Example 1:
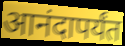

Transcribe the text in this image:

आनंदापर्यंत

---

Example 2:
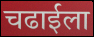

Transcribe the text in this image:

चढाईला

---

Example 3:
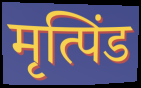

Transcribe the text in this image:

मृत्पिंड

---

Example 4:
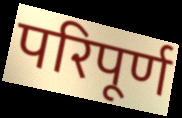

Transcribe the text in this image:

परिपूर्ण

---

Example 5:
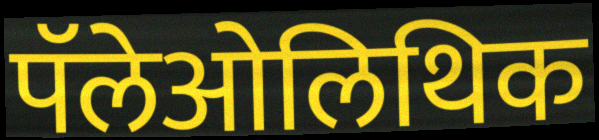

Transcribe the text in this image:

पॅलेओलिथिक